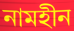
নামহীন